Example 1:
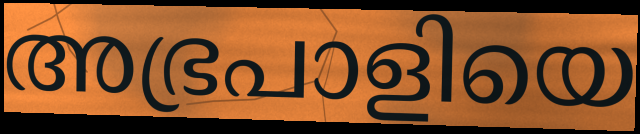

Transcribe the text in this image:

അഭ്രപാളിയെ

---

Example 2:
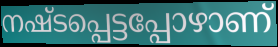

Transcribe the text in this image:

നഷ്ടപ്പെട്ടപ്പോഴാണ്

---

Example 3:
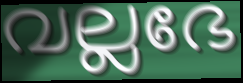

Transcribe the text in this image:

വല്ലഭേ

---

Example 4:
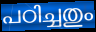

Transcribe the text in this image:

പഠിച്ചതും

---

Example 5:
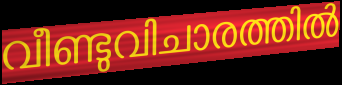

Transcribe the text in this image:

വീണ്ടുവിചാരത്തിൽ